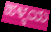
ಹಳ್ಳಯ